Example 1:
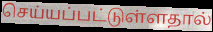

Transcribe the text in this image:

செய்யப்பட்டுள்ளதால்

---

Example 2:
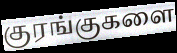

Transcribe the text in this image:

குரங்குகளை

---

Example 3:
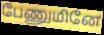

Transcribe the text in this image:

பேணுமினே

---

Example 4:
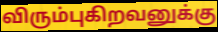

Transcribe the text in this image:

விரும்புகிறவனுக்கு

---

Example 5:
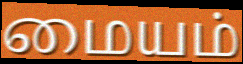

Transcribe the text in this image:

மையம்